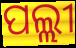
ପଲ୍ଲୀ